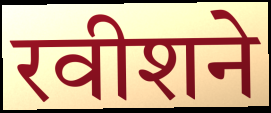
रवीशने